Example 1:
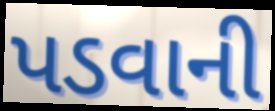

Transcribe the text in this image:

પડવાની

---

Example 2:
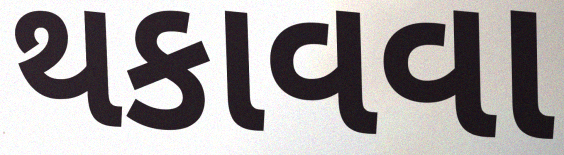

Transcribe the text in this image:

થકાવવા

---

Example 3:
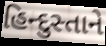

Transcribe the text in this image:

હિન્દુસ્તાને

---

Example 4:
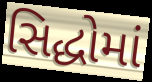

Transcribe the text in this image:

સિદ્ધોમાં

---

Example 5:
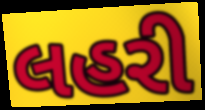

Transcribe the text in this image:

લહરી